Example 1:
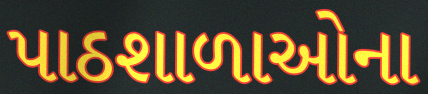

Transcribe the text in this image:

પાઠશાળાઓના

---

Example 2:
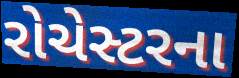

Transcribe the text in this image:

રોચેસ્ટરના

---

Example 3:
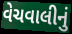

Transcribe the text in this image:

વેચવાલીનું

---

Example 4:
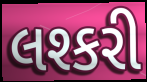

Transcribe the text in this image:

લશ્કરી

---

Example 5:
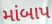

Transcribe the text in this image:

માંબાપ